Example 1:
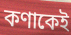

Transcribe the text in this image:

কণাকেই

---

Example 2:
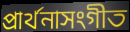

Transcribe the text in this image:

প্রার্থনাসংগীত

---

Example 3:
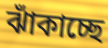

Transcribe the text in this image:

ঝাঁকাচ্ছে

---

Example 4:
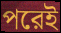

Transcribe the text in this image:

পরেই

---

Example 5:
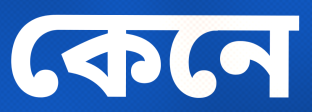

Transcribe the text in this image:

কেনে